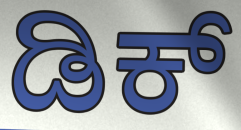
ಡಿಕ್